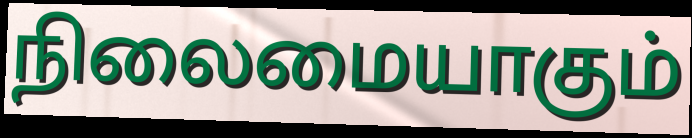
நிலைமையாகும்